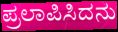
ಪ್ರಲಾಪಿಸಿದನು